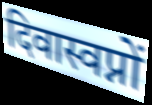
दिवास्वप्नों